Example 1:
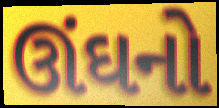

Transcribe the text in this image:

ઊંઘનો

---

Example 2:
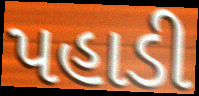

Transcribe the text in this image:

પહાડી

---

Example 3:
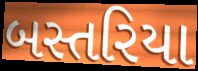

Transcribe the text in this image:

બસ્તરિયા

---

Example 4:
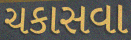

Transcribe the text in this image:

ચકાસવા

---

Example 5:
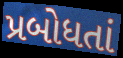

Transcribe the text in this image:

પ્રબોધતાં